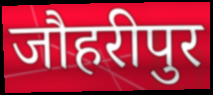
जौहरीपुर